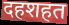
दहशहत